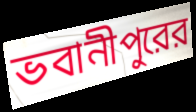
ভবানীপুরের